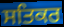
ਸਤਿਕਰ